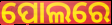
ପୋଲରେ